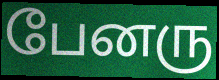
பேனரு